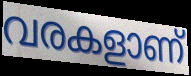
വരകളാണ്